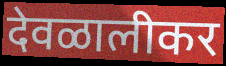
देवळालीकर